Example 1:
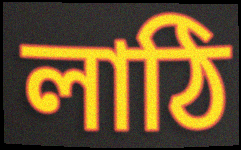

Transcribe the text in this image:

লাঠি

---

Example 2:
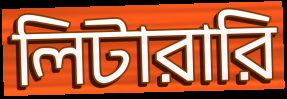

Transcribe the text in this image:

লিটারারি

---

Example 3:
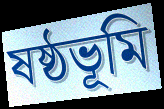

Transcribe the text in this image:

ষষ্ঠভূমি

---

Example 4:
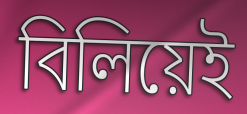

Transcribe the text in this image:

বিলিয়েই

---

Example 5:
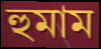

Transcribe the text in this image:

হুমাম